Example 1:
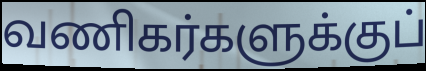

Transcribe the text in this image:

வணிகர்களுக்குப்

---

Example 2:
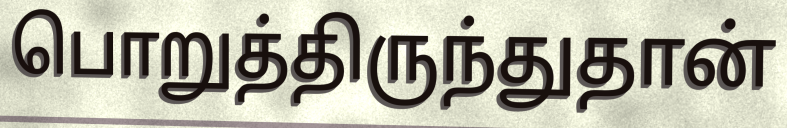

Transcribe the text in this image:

பொறுத்திருந்துதான்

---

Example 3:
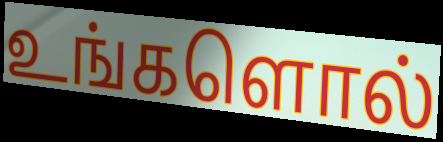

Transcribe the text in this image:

உங்களொல்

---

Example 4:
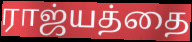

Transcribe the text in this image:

ராஜ்யத்தை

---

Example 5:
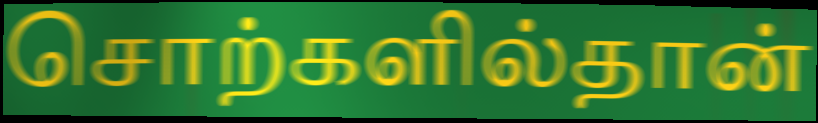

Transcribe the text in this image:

சொற்களில்தான்